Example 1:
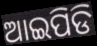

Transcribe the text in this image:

ଆଇପିଡି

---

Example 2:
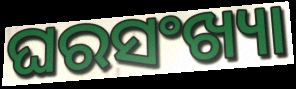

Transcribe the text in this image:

ଘରସଂଖ୍ୟା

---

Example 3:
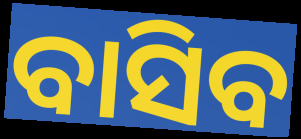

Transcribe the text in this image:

ବାସିବ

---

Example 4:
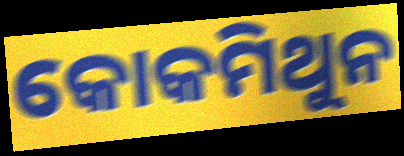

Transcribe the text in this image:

କୋକମିଥୁନ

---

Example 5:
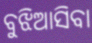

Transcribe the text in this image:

ବୁଝିଆସିବା